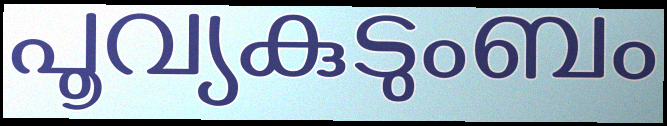
പൂവ്യകുടുംബം